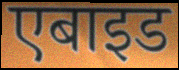
एबाइड